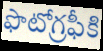
ఫొటోగ్రఫీకి